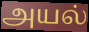
அயல்